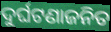
ଦୁର୍ଘଟଣାଜନିତ